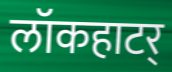
लॉकहाटर्